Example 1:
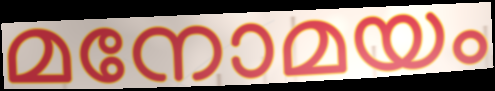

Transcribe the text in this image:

മനോമയം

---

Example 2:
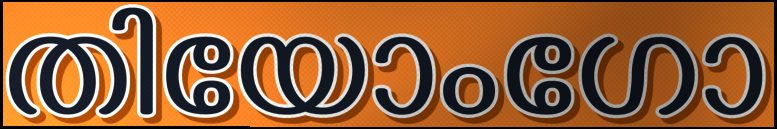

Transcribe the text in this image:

തിയോംഗോ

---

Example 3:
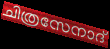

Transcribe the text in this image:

ചിത്രസേനാദ്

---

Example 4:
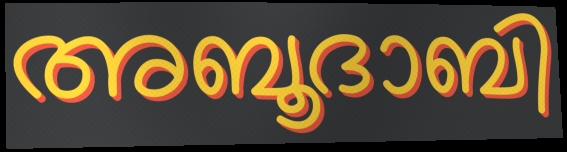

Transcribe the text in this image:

അബൂദാബി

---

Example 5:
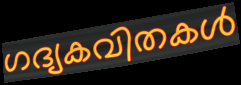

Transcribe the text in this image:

ഗദ്യകവിതകൾ